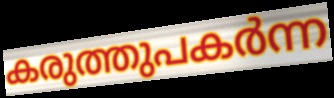
കരുത്തുപകർന്ന